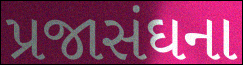
પ્રજાસંઘના